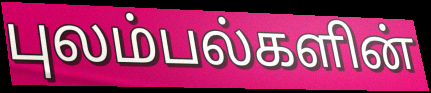
புலம்பல்களின்